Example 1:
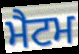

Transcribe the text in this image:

ਮੈਟਮ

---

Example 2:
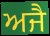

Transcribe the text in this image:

ਅਜੈ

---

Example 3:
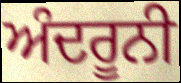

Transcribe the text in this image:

ਅੰਦਰੂਨੀ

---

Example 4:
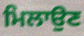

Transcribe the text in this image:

ਮਿਲਾਉਣ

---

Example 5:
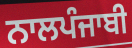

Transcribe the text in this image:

ਨਾਲਪੰਜਾਬੀ